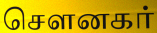
சௌனகர்